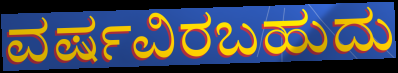
ವರ್ಷವಿರಬಹುದು